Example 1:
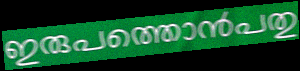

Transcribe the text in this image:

ഇരുപത്തൊൻപതു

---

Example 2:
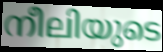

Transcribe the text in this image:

നീലിയുടെ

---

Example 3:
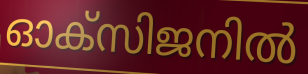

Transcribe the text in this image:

ഓക്സിജനിൽ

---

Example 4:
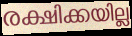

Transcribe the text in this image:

രക്ഷിക്കയില്ല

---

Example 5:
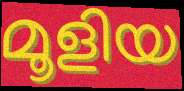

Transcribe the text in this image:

മൂളിയ